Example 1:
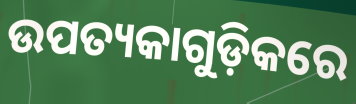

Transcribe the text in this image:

ଉପତ୍ୟକାଗୁଡ଼ିକରେ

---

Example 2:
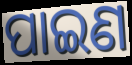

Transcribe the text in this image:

ପାଇଣ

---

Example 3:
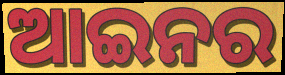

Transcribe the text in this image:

ଆଇନର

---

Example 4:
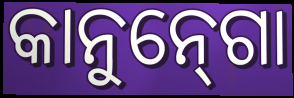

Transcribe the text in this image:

କାନୁନ୍‍ଗୋ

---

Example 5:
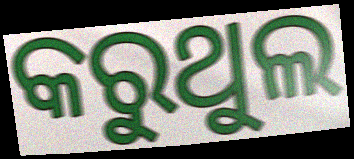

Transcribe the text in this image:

କରୁଥୁଲ